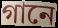
গানে